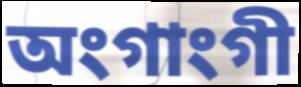
অংগাংগী